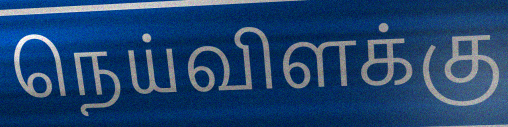
நெய்விளக்கு